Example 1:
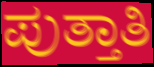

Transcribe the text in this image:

ಪುತ್ತಾತಿ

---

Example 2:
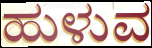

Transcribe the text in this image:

ಹುಳುವ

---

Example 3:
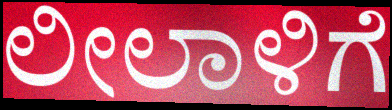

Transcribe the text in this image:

ಲೀಲಾಳಿಗೆ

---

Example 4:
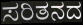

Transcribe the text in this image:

ಸರಿತನದ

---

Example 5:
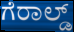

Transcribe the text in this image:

ಗೆರಾಲ್ಡ್